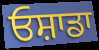
ਓਸ਼ਾਡਾ